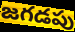
జగడపు